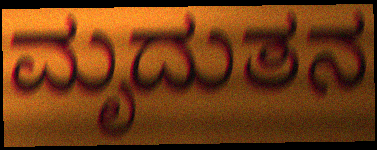
ಮೃದುತನ